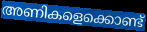
അണികളെക്കൊണ്ട്